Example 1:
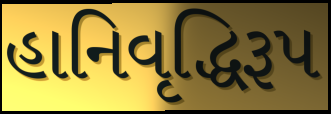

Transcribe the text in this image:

હાનિવૃદ્ધિરૂપ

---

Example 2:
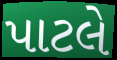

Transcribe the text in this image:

પાટલે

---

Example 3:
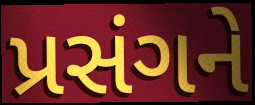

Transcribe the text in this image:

પ્રસંગને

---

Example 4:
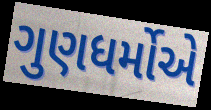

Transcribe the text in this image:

ગુણધર્મોએ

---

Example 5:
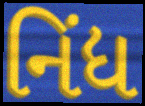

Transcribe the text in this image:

નિંદ્ય